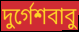
দুর্গেশবাবু